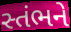
સ્તંભને